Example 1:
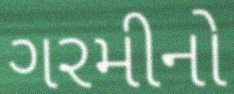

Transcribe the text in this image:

ગરમીનો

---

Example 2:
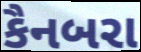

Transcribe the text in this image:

કૈનબરા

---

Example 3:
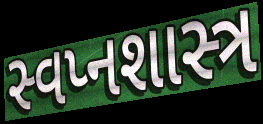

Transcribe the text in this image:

સ્વપ્નશાસ્ત્ર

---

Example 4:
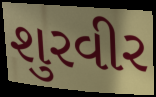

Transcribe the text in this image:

શુરવીર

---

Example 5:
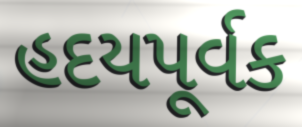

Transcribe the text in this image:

હદયપૂર્વક